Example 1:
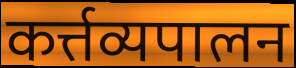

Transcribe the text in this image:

कर्त्तव्यपालन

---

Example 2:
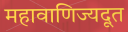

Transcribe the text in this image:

महावाणिज्यदूत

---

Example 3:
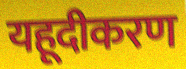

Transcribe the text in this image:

यहूदीकरण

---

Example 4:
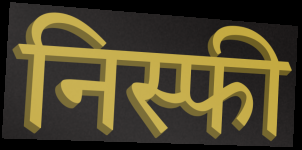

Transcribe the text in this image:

निस्फी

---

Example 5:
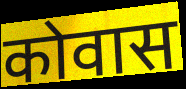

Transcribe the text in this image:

कोवास